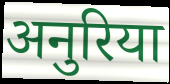
अनुरिया